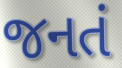
જનતં